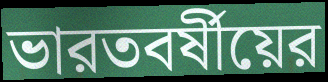
ভারতবর্ষীয়ের